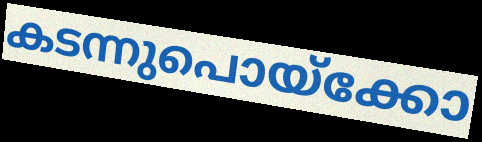
കടന്നുപൊയ്ക്കോ